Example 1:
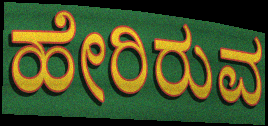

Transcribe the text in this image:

ಹೇರಿರುವ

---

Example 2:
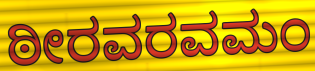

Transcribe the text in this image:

ಠೀರವರವಮಂ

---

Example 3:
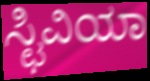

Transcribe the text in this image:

ಸ್ಟಿವಿಯಾ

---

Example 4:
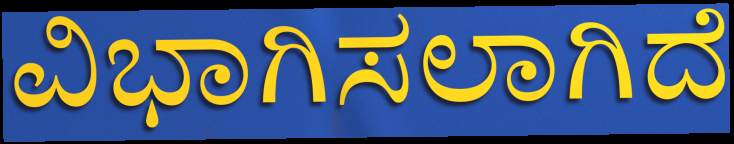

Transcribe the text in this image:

ವಿಭಾಗಿಸಲಾಗಿದೆ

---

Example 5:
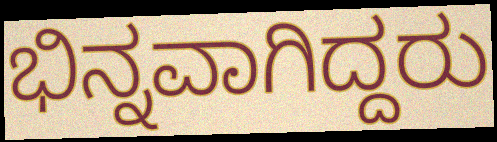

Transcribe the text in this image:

ಭಿನ್ನವಾಗಿದ್ದರು